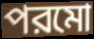
পরমো